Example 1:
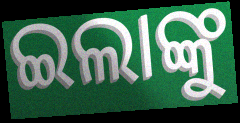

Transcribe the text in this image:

ଇଲାଙ୍କୁ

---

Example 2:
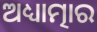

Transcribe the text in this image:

ଅଧ୍ୟାତ୍ମାର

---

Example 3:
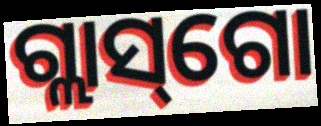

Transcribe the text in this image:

ଗ୍ଲାସ୍‌ଗୋ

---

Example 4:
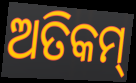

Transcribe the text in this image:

ଅତିକମ୍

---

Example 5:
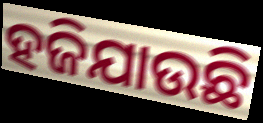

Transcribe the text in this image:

ହଜିଯାଉଛି